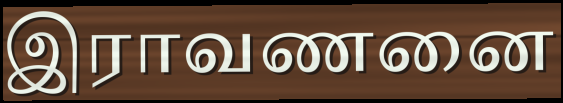
இராவணனை